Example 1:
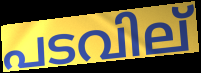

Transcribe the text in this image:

പടവില്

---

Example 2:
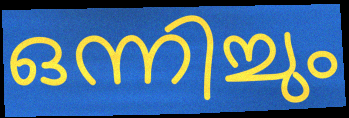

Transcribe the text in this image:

ഒന്നിച്ചും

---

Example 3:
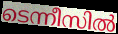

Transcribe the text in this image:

ടെന്നീസിൽ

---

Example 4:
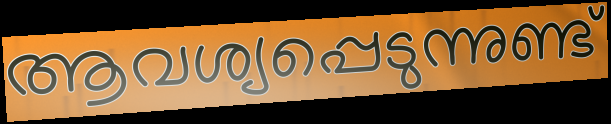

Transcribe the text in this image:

ആവശ്യപ്പെടുന്നുണ്ട്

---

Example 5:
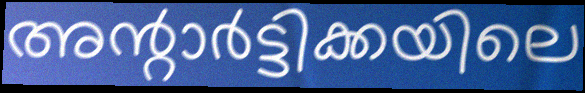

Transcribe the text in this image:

അന്റാർട്ടിക്കയിലെ